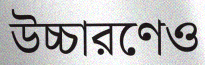
উচ্চারণেও